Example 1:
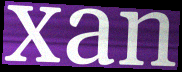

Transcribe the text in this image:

xan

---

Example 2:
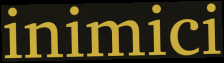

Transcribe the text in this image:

inimici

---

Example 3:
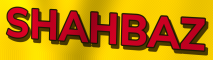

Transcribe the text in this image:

SHAHBAZ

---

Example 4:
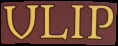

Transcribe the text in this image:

ULIP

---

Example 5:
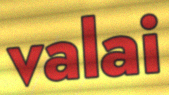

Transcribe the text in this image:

valai